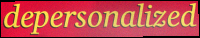
depersonalized